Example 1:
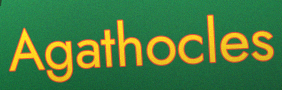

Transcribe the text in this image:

Agathocles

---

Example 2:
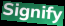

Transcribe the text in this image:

Signify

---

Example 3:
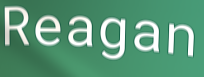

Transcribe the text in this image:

Reagan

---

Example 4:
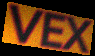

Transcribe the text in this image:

VEX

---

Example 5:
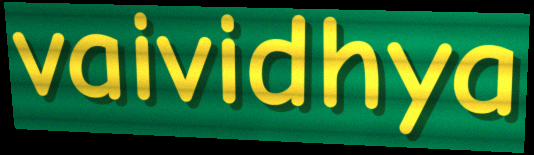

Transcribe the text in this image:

vaividhya